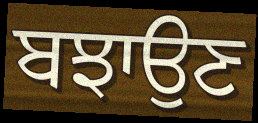
ਬਝਾਉਣ